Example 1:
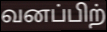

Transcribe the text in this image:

வனப்பிற்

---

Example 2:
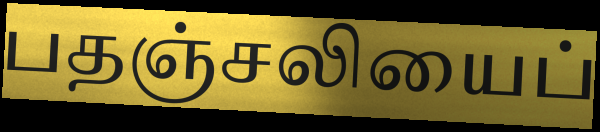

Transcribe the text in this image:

பதஞ்சலியைப்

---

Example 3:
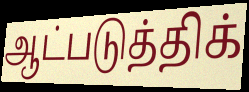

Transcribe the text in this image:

ஆட்படுத்திக்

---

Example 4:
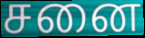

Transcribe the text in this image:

சனை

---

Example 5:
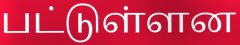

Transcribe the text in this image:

பட்டுள்ளன